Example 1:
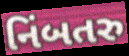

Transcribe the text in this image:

નિંબતરુ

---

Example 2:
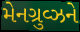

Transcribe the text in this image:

મેનગ્રુવ્ઝને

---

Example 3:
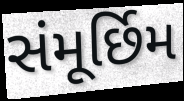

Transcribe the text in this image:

સંમૂર્છિમ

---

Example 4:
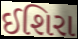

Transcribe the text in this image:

ઈશિરા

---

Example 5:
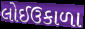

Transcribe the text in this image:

લોઈઉકાળા